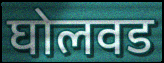
घोलवड